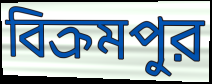
বিক্রমপুর